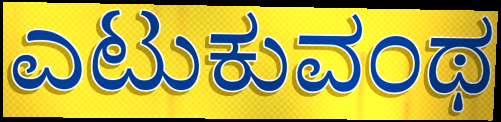
ಎಟುಕುವಂಥ